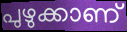
പുഴുക്കാണ്